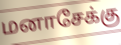
மனாசேக்கு